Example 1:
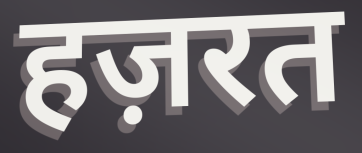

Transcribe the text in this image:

हज़रत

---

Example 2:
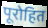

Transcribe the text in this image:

पूरोहित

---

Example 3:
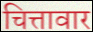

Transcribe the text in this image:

चित्तावार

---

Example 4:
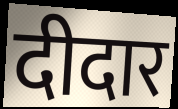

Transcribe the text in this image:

दीदार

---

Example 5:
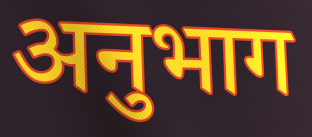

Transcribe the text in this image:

अनुभाग